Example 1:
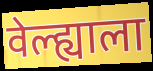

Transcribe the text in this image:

वेल्ह्याला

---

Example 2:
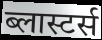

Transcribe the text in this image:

ब्लास्टर्स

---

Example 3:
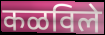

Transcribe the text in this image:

कळविले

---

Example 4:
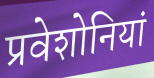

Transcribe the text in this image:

प्रवेशोनियां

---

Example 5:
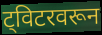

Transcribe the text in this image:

ट्विटरवरून